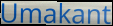
Umakant